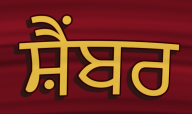
ਸ਼ੈਂਬਰ